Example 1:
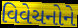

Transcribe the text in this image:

વિવેચનોને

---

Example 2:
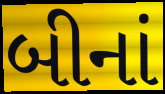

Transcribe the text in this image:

બીનાં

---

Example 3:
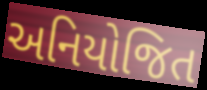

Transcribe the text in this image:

અનિયોજિત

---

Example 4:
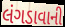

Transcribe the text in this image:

લંગડાવાની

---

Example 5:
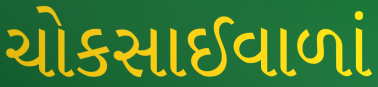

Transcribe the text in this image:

ચોકસાઈવાળાં